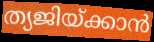
ത്യജിയ്ക്കാൻ